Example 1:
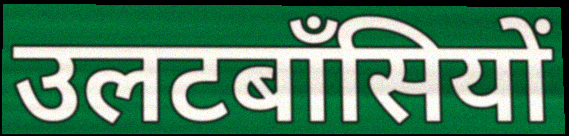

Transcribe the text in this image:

उलटबाँसियों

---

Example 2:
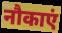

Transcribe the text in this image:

नौकाएं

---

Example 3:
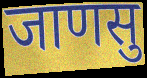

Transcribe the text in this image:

जाणसु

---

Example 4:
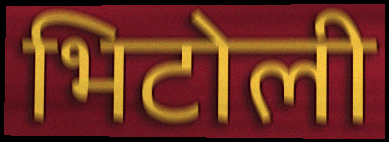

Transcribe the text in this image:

भिटोली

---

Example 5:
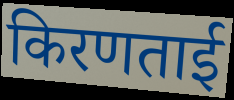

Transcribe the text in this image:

किरणताई